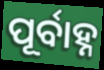
ପୂର୍ବାହ୍ନ